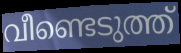
വീണ്ടെടുത്ത്